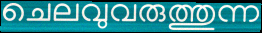
ചെലവുവരുത്തുന്ന